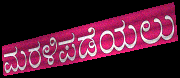
ಮರಳಿಪಡೆಯಲು